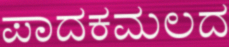
ಪಾದಕಮಲದ